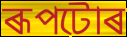
ৰূপটোৰ